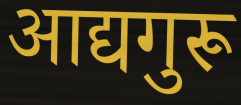
आद्यगुरू